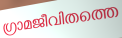
ഗ്രാമജീവിതത്തെ